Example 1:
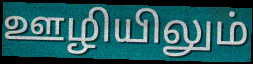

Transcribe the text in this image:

ஊழியிலும்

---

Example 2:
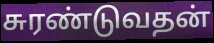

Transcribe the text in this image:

சுரண்டுவதன்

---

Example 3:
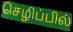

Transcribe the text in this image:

செழிப்பில்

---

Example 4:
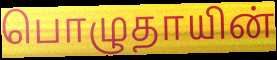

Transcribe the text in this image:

பொழுதாயின்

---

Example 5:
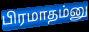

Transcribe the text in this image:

பிரமாதம்னு